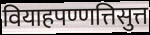
वियाहपण्णत्तिसुत्त